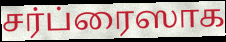
சர்ப்ரைஸாக